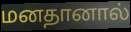
மனதானால்